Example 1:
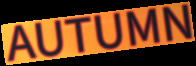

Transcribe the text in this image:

AUTUMN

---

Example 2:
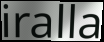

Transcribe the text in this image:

iralla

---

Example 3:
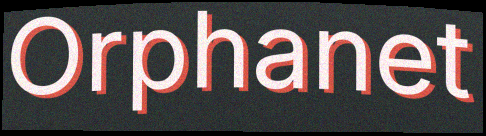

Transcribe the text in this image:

Orphanet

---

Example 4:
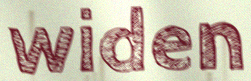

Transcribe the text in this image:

widen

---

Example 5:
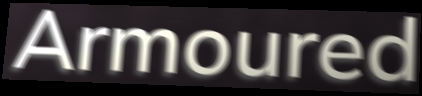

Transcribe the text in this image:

Armoured